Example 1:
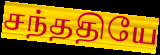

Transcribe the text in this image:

சந்ததியே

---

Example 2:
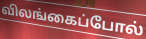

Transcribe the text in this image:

விலங்கைப்போல்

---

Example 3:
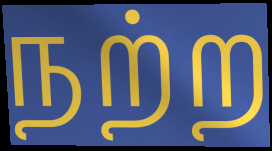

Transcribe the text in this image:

நற்ற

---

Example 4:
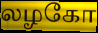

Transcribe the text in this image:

லழகோ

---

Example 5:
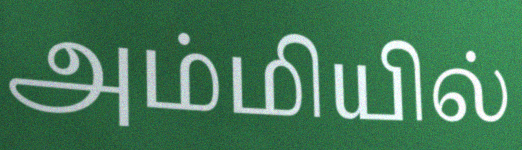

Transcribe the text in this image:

அம்மியில்